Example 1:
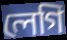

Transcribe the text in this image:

লেগি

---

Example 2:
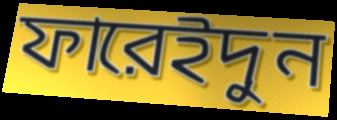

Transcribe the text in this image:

ফারেইদুন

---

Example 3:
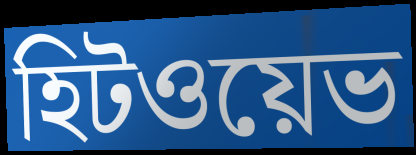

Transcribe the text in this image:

হিটওয়েভ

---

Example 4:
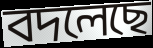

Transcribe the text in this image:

বদলেছে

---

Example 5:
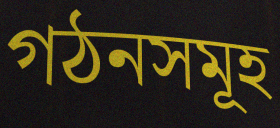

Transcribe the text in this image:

গঠনসমূহ